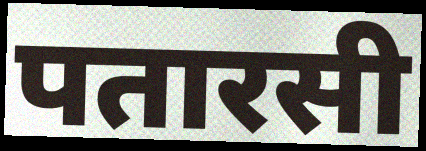
पतारसी